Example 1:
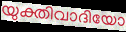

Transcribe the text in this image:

യുക്തിവാദിയോ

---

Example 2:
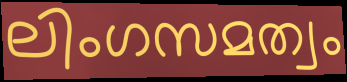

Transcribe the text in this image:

ലിംഗസമത്വം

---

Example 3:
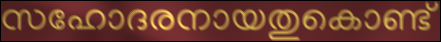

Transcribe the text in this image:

സഹോദരനായതുകൊണ്ട്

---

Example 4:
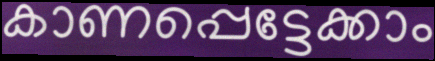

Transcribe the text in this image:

കാണപ്പെട്ടേക്കാം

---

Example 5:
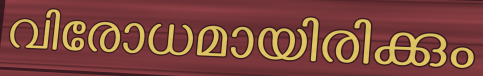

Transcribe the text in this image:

വിരോധമായിരിക്കും